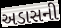
અડાસની